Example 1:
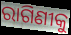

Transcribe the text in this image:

ରାଗିଣୀକୁ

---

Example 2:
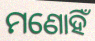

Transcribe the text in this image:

ମଣୋହିଁ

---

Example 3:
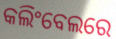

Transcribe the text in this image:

କଲିଂବେଲରେ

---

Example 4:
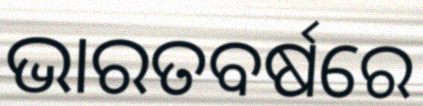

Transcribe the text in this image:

ଭାରତବର୍ଷରେ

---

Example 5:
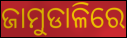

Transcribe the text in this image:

ଜାମୁଡାଳିରେ